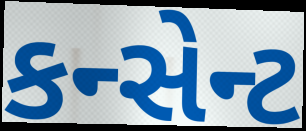
કન્સેન્ટ